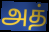
அத்